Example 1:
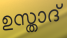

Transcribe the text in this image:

ഉസ്താദ്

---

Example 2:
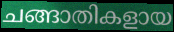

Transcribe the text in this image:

ചങ്ങാതികളായ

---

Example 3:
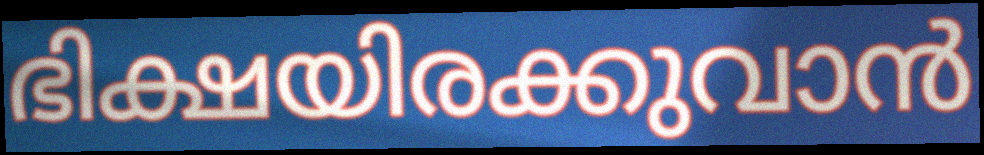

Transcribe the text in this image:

ഭിക്ഷയിരക്കുവാൻ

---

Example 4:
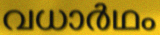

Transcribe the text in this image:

വധാർഥം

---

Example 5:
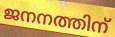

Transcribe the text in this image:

ജനനത്തിന്